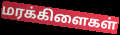
மரக்கிளைகள்